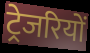
ट्रेजरियों